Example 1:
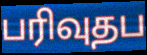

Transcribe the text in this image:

பரிவுதப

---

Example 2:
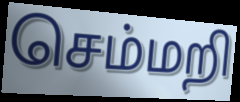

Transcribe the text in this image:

செம்மறி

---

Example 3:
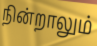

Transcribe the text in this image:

நின்றாலும்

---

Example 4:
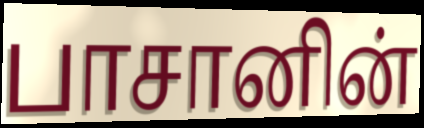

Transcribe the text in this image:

பாசானின்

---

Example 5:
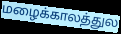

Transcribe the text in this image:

மழைக்காலத்துல